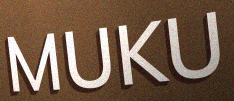
MUKU